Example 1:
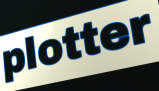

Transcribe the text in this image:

plotter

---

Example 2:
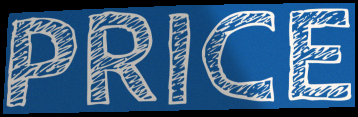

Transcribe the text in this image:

PRICE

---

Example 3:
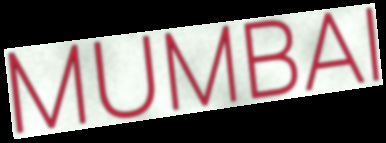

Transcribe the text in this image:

MUMBAI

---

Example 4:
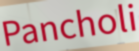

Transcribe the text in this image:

Pancholi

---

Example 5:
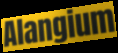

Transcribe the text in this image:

Alangium